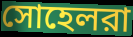
সোহেলরা